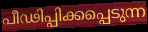
പീഢിപ്പിക്കപ്പെടുന്ന